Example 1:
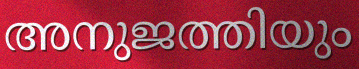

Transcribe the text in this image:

അനുജത്തിയും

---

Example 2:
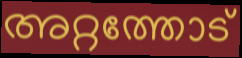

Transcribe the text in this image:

അറ്റത്തോട്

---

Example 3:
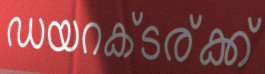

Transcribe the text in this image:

ഡയറക്ടര്ക്ക്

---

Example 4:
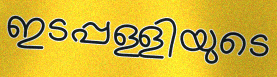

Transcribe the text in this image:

ഇടപ്പള്ളിയുടെ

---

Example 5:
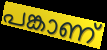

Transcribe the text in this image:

പങ്കാണ്